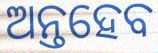
ଅନ୍ତହେବ